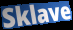
Sklave